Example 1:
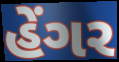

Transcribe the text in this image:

હેંગર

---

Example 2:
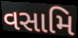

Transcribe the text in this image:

વસામિ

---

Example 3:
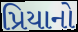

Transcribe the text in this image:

પ્રિયાનો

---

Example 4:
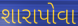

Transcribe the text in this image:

શારાપોવા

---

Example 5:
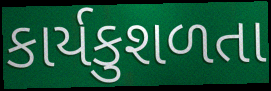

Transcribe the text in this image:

કાર્યકુશળતા